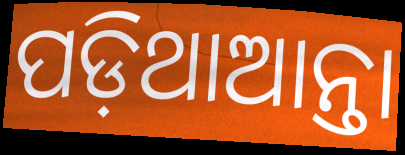
ପଡ଼ିଥାଆନ୍ତା